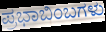
ಪ್ರಭಾಬಿಂಬಗಳು